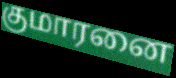
குமாரனை